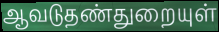
ஆவடுதண்துறையுள்